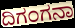
ದಿಗಂಗನಾ